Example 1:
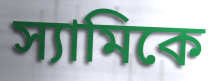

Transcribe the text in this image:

স্যামিকে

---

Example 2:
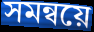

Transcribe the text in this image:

সমন্বয়ে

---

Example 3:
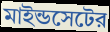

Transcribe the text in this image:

মাইন্ডসেটের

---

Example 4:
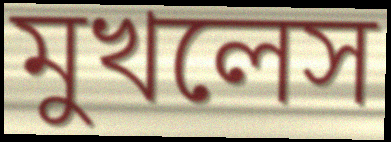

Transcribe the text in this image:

মুখলেস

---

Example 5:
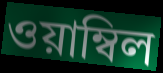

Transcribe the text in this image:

ওয়াম্বিল